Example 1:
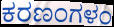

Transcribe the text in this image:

ಕರಣಂಗಳಂ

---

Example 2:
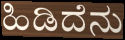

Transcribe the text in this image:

ಹಿಡಿದೆನು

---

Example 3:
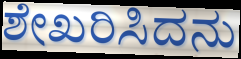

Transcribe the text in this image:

ಶೇಖರಿಸಿದನು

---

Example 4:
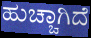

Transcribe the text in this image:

ಹುಚ್ಚಾಗಿದೆ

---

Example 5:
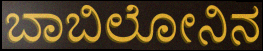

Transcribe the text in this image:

ಬಾಬಿಲೋನಿನ